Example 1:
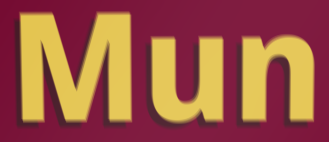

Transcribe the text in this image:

Mun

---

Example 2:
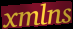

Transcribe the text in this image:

xmlns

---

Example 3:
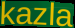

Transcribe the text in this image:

kazla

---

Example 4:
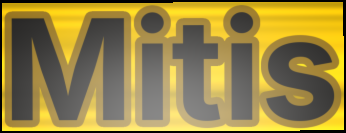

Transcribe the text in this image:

Mitis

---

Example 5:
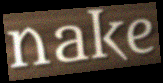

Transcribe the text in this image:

nake